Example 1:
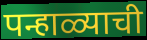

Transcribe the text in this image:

पन्हाळ्याची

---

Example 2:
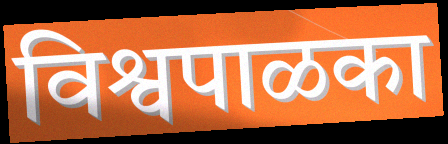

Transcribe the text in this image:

विश्वपाळका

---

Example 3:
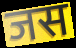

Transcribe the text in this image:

जस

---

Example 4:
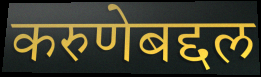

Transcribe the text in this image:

करुणेबद्दल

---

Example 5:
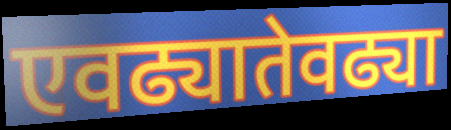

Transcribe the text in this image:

एवढ्यातेवढ्या